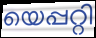
യെപ്പറ്റി